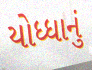
યોધ્ધાનું